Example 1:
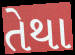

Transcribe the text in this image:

તેથા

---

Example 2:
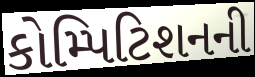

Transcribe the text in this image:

કોમ્પિટિશનની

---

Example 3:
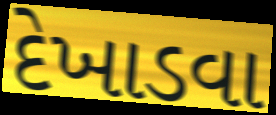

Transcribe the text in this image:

દેખાડવા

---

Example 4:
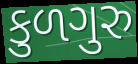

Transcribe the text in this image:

કુળગુરુ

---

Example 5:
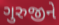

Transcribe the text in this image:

ગુરુજીને